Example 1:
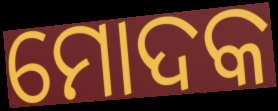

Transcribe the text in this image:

ମୋଦକ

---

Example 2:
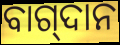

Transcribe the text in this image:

ବାଗ୍‍ଦାନ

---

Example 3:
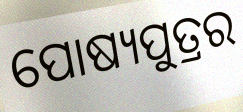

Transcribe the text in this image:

ପୋଷ୍ୟପୁତ୍ରର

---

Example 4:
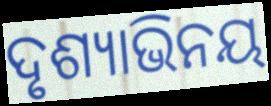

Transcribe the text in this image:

ଦୃଶ୍ୟାଭିନୟ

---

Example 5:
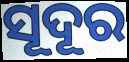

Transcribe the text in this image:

ସୂଦୂର